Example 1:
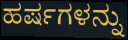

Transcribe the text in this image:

ಹರ್ಷಗಳನ್ನು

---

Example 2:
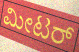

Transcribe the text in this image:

ಮೀಟರ್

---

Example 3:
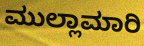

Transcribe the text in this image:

ಮುಲ್ಲಾಮಾರಿ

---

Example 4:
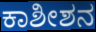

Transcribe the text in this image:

ಕಾಶೀಶನ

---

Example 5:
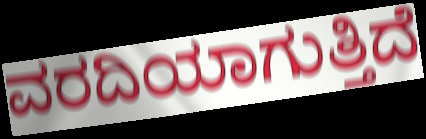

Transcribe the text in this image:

ವರದಿಯಾಗುತ್ತಿದೆ